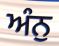
ਅੰਨੁ